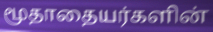
மூதாதையர்களின்